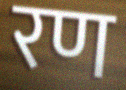
रण